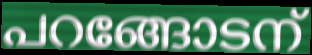
പറങ്ങോടന്